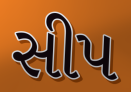
સીપ